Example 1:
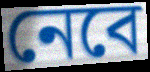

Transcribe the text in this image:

নেবে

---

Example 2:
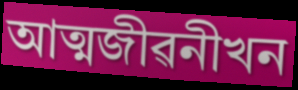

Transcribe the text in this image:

আত্মজীৱনীখন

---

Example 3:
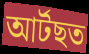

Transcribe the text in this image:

আৰ্টছত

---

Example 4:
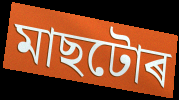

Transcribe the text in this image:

মাছটোৰ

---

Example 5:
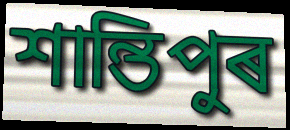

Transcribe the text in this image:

শান্তিপুৰ